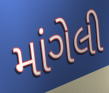
માંગેલી